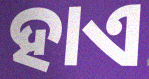
ହାଏ